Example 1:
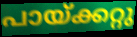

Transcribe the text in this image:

പായ്ക്കറ്റു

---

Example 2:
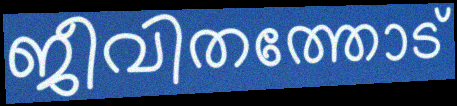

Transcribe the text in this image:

ജീവിതത്തോട്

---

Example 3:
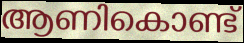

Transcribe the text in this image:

ആണികൊണ്ട്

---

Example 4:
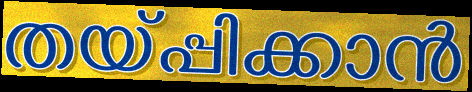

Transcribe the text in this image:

തയ്പ്പിക്കാൻ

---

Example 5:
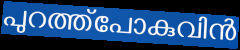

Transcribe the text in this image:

പുറത്ത്പോകുവിൻ